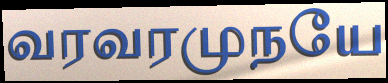
வரவரமுநயே